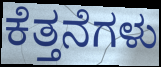
ಕೆತ್ತನೆಗಳು